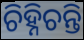
ଚିହ୍ନିଚନ୍ତି